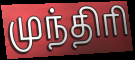
முந்திரி